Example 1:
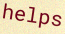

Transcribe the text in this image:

helps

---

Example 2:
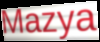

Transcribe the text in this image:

Mazya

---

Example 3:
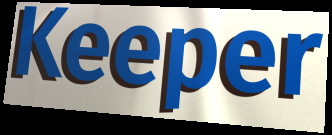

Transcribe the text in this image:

Keeper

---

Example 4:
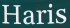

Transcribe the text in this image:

Haris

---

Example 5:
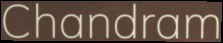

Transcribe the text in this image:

Chandram